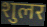
शुलर